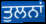
ਤੁਲਨਾਂ